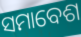
ସମାବେଶ